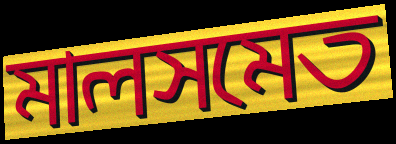
মালসমেত